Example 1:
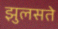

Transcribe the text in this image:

झुलसते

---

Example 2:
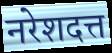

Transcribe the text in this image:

नरेशदत्त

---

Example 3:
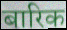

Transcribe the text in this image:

बारिक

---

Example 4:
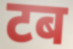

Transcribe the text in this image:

टब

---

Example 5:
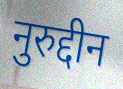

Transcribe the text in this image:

नुरुद्दीन